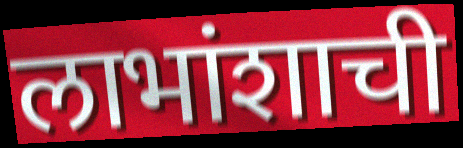
लाभांशाची